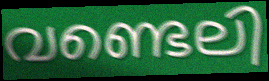
വണ്ടെലി